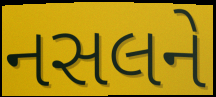
નસલને